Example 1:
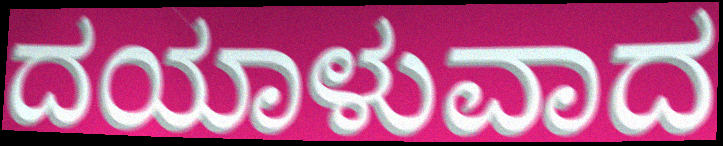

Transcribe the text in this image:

ದಯಾಳುವಾದ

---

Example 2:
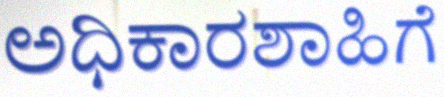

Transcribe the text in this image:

ಅಧಿಕಾರಶಾಹಿಗೆ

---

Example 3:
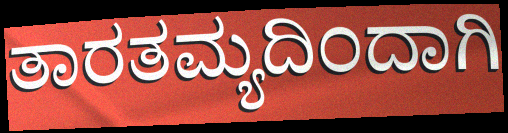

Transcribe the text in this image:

ತಾರತಮ್ಯದಿಂದಾಗಿ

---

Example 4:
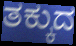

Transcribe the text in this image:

ತಕ್ಕುದ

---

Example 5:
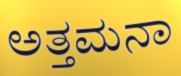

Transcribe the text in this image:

ಅತ್ತಮನಾ